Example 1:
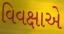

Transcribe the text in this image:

વિવક્ષાએ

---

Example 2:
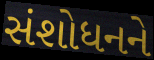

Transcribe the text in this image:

સંશોધનને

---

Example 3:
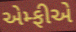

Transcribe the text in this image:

એમ્ફીએ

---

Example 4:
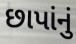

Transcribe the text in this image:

છાપાંનું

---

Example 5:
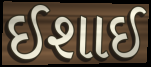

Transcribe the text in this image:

ઈશાઈ